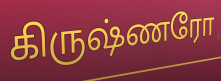
கிருஷ்ணரோ